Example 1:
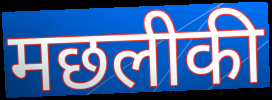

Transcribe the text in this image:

मछलीकी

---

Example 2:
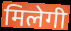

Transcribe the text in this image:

मिलेगी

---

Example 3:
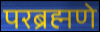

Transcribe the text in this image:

परब्रह्मणे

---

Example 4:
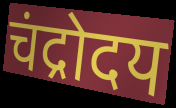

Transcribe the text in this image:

चंद्रोदय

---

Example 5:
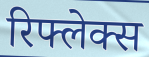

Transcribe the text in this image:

रिफ्लेक्स